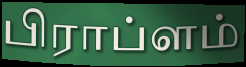
பிராப்ளம்